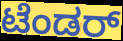
ಟೆಂಡರ್